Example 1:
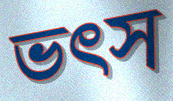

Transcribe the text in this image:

ভৎস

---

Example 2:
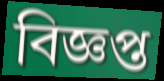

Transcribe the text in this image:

বিজ্ঞপ্ত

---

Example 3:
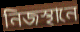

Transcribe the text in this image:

নিজস্থানে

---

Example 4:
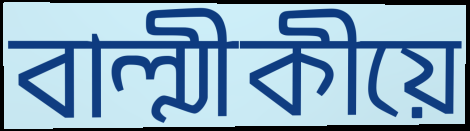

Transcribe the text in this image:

বাল্মীকীয়ে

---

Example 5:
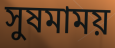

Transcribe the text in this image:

সুষমাময়